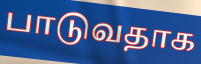
பாடுவதாக